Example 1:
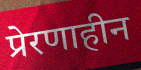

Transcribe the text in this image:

प्रेरणाहीन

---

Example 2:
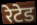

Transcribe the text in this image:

रेटेड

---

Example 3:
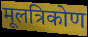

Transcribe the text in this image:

मूलत्रिकोण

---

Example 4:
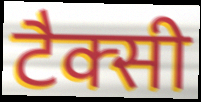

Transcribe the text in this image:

टैक्‍सी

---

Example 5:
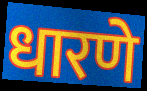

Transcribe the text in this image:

धारणे